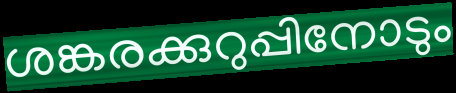
ശങ്കരക്കുറുപ്പിനോടും